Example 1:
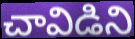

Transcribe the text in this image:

చావిడిని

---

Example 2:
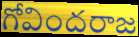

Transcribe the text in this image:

గోవిందరాజ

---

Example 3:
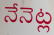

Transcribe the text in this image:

నేనెట్ల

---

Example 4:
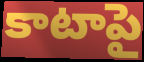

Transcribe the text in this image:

కాటాపై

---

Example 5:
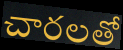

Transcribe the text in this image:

చారలతో